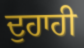
ਦੁਹਾਹੀ